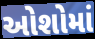
ઓશોમાં